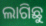
ଲାଗିଛୁ